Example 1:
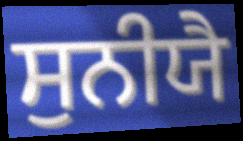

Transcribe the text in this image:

ਸੁਨੀਯੈ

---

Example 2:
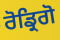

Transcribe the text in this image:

ਰੋਡ੍ਰਿਗੋ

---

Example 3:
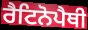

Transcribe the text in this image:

ਰੈਟਿਨੋਪੈਥੀ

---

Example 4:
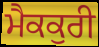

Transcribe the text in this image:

ਮੈਕਕੁਰੀ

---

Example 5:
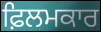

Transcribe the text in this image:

ਫ਼ਿਲਮਕਾਰ